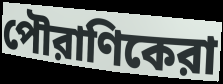
পৌরাণিকেরা